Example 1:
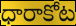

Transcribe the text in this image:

ధారాకోట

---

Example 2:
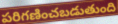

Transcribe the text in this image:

పరిగణించబడుతుంది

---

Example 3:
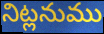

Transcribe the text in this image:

నిట్లనుము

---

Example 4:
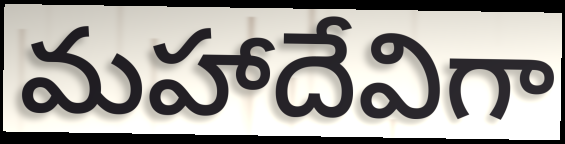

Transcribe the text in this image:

మహాదేవిగా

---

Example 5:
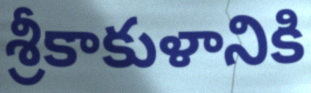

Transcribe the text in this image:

శ్రీకాకుళానికి